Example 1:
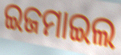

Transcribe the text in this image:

ଇଜମାଇଲ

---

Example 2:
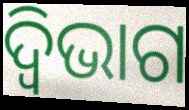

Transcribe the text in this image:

ଦ୍ୱିଭାଗ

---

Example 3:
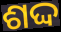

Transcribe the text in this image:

ଶଦ୍ଦ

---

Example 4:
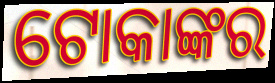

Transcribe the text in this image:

ଟୋକାଙ୍କର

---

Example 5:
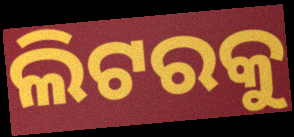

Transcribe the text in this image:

ଲିଟରକୁ